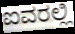
ಐವರಲ್ಲಿ